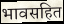
भावसहित